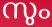
സും